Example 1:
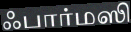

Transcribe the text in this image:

ஃபார்மஸி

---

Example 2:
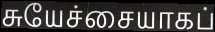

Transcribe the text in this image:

சுயேச்சையாகப்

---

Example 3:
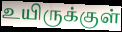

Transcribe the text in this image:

உயிருக்குள்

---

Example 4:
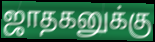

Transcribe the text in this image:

ஜாதகனுக்கு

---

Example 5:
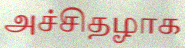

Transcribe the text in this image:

அச்சிதழாக